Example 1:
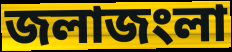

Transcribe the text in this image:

জলাজংলা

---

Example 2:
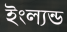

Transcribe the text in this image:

ইংল্যন্ড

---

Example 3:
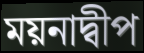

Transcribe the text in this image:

ময়নাদ্বীপ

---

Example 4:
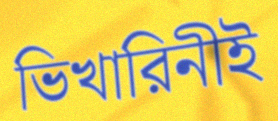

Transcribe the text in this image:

ভিখারিনীই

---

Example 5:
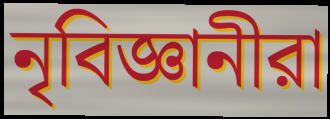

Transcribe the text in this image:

নৃবিজ্ঞানীরা